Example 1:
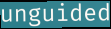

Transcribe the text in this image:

unguided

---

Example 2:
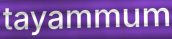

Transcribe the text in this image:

tayammum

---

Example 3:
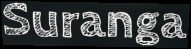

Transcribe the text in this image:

Suranga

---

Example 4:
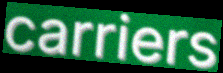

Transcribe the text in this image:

carriers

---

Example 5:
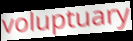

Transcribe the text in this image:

voluptuary